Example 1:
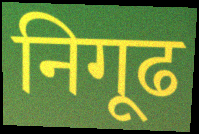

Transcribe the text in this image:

निगूढ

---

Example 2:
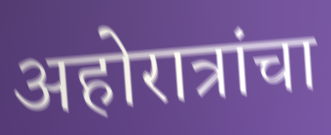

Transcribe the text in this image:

अहोरात्रांचा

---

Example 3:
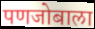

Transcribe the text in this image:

पणजोबाला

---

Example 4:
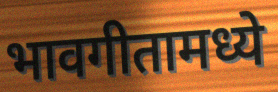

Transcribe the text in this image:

भावगीतामध्ये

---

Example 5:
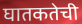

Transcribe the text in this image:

घातकतेची